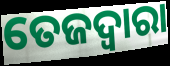
ତେଜଦ୍ୱାରା